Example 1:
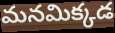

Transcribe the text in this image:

మనమిక్కడ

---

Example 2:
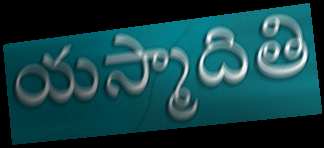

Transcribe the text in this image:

యస్మాదితి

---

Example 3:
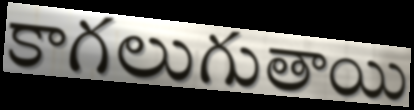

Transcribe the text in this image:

కాగలుగుతాయి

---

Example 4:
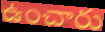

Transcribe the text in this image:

ఉంచారు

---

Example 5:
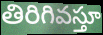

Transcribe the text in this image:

తిరిగివస్తూ